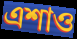
এশাও